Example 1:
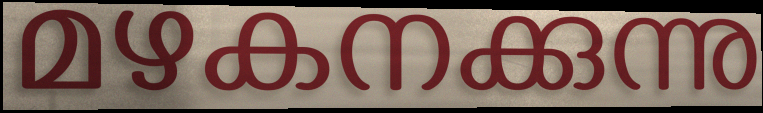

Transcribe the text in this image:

മഴകനക്കുന്നു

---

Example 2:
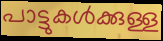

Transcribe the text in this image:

പാട്ടുകൾക്കുള്ള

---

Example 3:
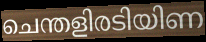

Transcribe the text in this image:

ചെന്തളിരടിയിണ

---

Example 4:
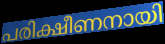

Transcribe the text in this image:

പരിക്ഷീണനായി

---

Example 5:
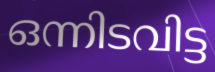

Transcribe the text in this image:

ഒന്നിടവിട്ട